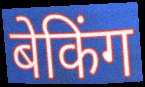
बेकिंग